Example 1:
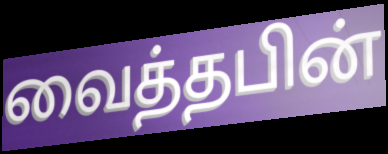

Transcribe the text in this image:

வைத்தபின்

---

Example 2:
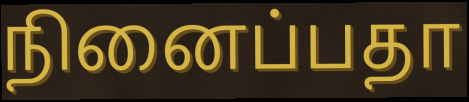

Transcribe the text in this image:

நினைப்பதா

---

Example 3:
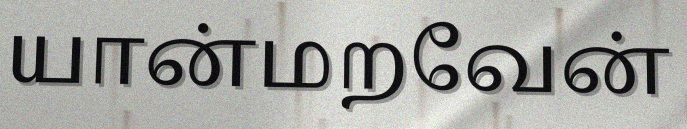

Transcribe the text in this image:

யான்மறவேன்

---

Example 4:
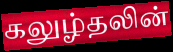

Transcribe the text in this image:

கலுழ்தலின்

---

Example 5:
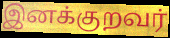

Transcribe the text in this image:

இனக்குறவர்